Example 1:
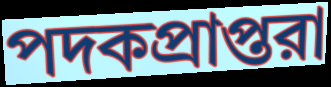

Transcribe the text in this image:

পদকপ্রাপ্তরা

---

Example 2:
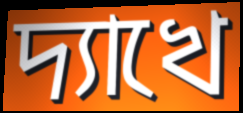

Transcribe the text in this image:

দ্যাখে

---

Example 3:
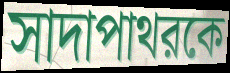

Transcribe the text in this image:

সাদাপাথরকে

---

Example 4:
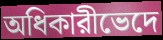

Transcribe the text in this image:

অধিকারীভেদে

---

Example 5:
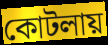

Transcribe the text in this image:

কোটলায়